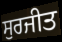
ਸੁਰਜੀਤ